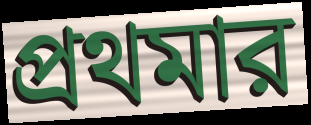
প্রথমার